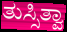
ತುಸ್ಸಿತ್ವಾ